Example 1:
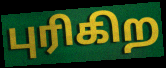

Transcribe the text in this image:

புரிகிற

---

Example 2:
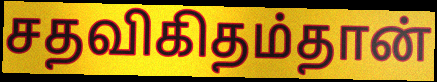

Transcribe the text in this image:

சதவிகிதம்தான்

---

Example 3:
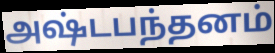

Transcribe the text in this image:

அஷ்டபந்தனம்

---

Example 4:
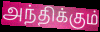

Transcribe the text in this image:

அந்திக்கும்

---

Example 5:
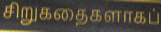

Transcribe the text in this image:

சிறுகதைகளாகப்